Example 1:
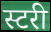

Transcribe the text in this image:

स्टरी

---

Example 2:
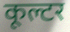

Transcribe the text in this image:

कूल्टर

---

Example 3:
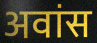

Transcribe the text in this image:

अवांस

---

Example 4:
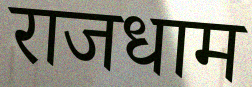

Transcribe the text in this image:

राजधाम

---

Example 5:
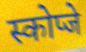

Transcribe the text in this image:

स्कोप्जे